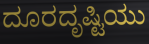
ದೂರದೃಷ್ಟಿಯು